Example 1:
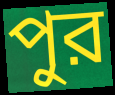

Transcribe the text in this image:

পুর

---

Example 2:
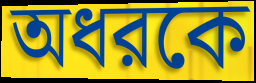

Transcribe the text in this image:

অধরকে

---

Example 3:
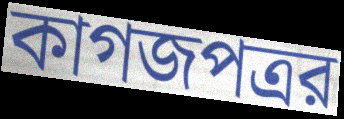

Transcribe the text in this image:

কাগজপত্রর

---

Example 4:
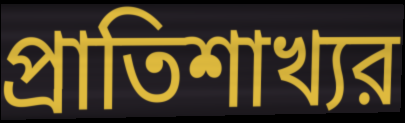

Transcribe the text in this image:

প্রাতিশাখ্যর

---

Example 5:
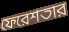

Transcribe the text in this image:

ফেরেশতার